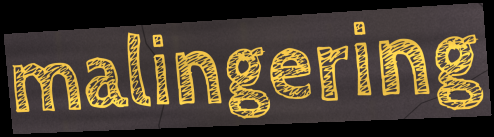
malingering